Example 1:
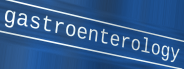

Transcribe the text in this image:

gastroenterology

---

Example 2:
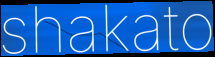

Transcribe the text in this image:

shakato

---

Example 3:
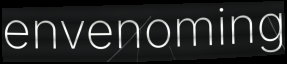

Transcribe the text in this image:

envenoming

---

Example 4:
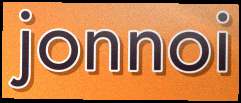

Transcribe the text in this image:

jonnoi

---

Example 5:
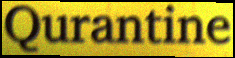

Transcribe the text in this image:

Qurantine